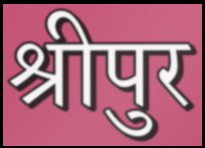
श्रीपुर